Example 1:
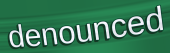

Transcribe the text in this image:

denounced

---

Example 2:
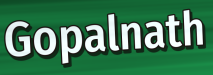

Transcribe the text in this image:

Gopalnath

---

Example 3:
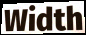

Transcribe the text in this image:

Width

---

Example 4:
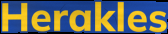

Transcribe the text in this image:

Herakles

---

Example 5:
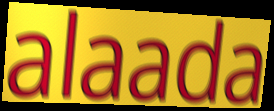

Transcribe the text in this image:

alaada